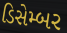
ડિસેમ્બર